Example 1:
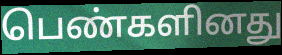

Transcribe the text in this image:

பெண்களினது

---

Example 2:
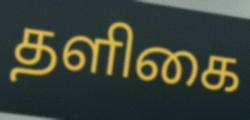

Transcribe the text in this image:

தளிகை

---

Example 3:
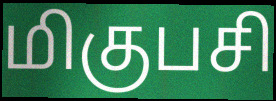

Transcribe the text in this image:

மிகுபசி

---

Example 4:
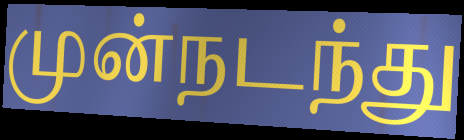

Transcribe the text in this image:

முன்நடந்து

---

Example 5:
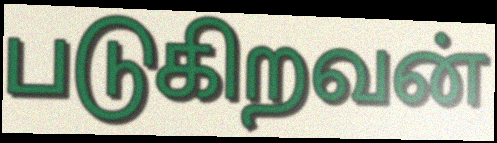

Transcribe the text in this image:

படுகிறவன்